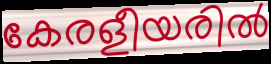
കേരളീയരിൽ